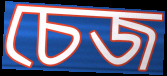
চেজ